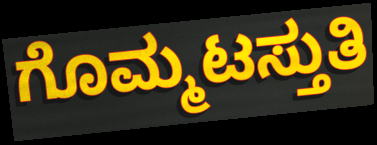
ಗೊಮ್ಮಟಸ್ತುತಿ